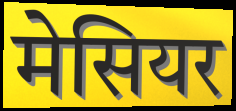
मेसियर